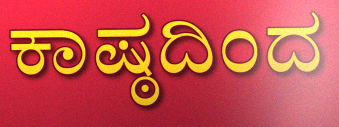
ಕಾಷ್ಠದಿಂದ